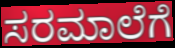
ಸರಮಾಲೆಗೆ